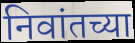
निवांतच्या